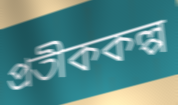
প্রতীককল্প